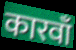
कारवाँ